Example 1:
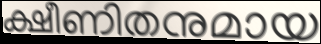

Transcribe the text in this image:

ക്ഷീണിതനുമായ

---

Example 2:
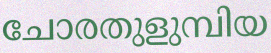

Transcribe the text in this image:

ചോരതുളുമ്പിയ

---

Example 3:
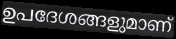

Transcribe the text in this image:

ഉപദേശങ്ങളുമാണ്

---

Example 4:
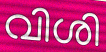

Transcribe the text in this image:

വിശി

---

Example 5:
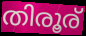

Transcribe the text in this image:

തിരൂര്